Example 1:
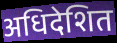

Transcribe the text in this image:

अधिदेशित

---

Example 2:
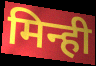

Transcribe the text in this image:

मिन्ही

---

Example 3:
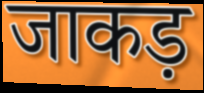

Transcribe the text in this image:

जाकड़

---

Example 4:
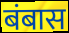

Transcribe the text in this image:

बंबास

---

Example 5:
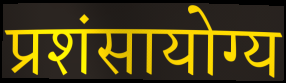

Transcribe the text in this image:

प्रशंसायोग्य